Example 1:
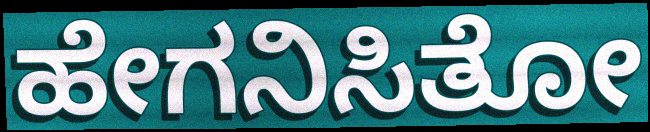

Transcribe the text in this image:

ಹೇಗನಿಸಿತೋ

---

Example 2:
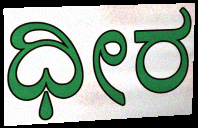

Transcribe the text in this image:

ಧೀರ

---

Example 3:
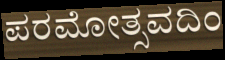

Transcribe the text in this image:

ಪರಮೋತ್ಸವದಿಂ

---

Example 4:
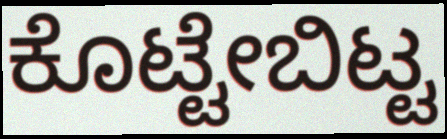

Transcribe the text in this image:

ಕೊಟ್ಟೇಬಿಟ್ಟ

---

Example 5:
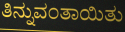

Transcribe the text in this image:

ತಿನ್ನುವಂತಾಯಿತು